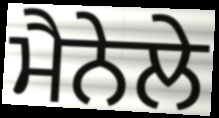
ਮੈਨੇਲੇ